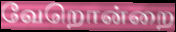
வேறொன்றை